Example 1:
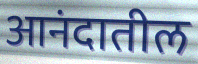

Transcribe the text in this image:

आनंदातील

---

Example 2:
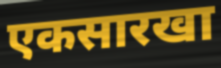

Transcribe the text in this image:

एकसारखा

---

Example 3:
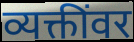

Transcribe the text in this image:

व्यक्तींवर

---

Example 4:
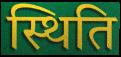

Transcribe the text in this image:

स्थिति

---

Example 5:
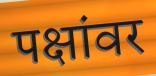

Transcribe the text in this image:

पक्षांवर